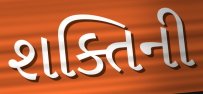
શક્તિની